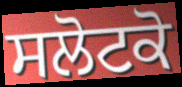
ਸਲੋਟਕੋ